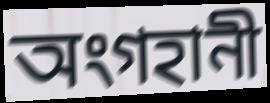
অংগহানী